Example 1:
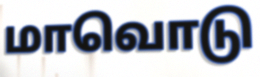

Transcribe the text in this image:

மாவொடு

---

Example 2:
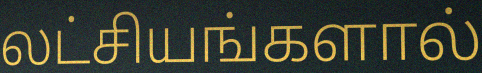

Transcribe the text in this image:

லட்சியங்களால்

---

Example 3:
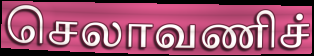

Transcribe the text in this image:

செலாவணிச்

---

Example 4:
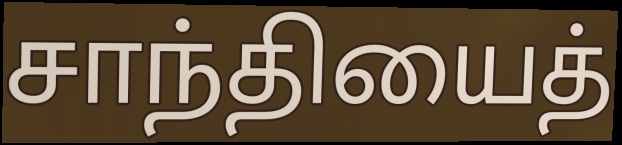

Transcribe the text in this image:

சாந்தியைத்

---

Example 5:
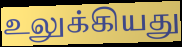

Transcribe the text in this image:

உலுக்கியது